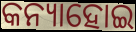
କନ୍ୟାହୋଇ